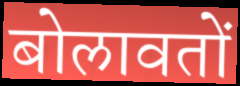
बोलावतों